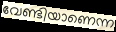
വേണ്ടിയാണെന്ന